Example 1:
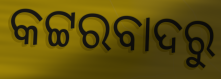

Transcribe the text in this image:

କଟ୍ଟରବାଦରୁ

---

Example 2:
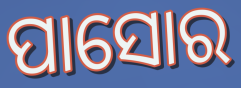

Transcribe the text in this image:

ପାସୋର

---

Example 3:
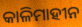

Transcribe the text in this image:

କାଳିମାହୀନ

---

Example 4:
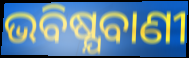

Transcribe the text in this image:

ଭବିଷ୍ଯବାଣୀ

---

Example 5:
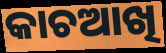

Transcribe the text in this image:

କାଚଆଖି